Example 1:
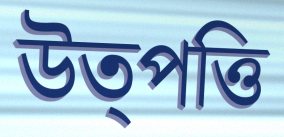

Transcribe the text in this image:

উত্পত্তি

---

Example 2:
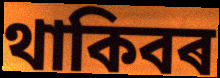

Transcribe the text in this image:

থাকিবৰ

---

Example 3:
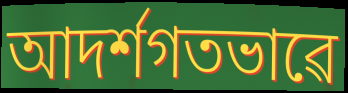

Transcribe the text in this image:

আদৰ্শগতভাৱে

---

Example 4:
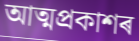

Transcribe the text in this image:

আত্মপ্ৰকাশৰ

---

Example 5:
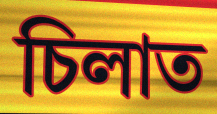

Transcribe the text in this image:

চিলাত